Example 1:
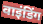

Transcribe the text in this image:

वाइंडिंग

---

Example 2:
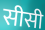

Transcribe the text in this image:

सीसी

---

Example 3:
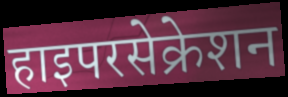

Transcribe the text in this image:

हाइपरसेक्रेशन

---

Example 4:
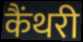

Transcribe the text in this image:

कैंथरी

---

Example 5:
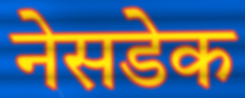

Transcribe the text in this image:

नेसडेक